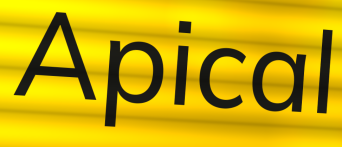
Apical